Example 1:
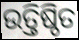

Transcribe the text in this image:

ଉତ୍ତିଷ୍ଠିତ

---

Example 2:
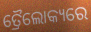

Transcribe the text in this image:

ତ୍ରୈଲୋକ୍ୟରେ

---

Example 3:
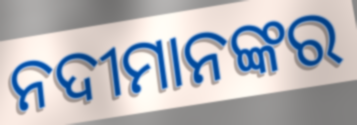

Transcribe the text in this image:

ନଦୀମାନଙ୍କର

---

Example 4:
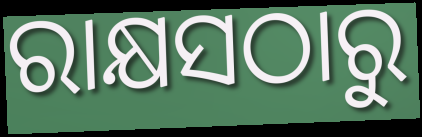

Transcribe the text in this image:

ରାକ୍ଷସଠାରୁ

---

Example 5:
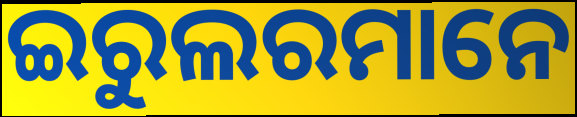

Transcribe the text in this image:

ଇରୁଲରମାନେ